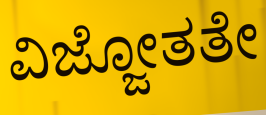
ವಿಜ್ಜೋತತೇ